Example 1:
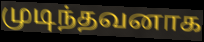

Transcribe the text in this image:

முடிந்தவனாக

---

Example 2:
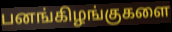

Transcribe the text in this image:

பனங்கிழங்குகளை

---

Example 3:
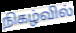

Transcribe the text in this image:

நிகழ்வில்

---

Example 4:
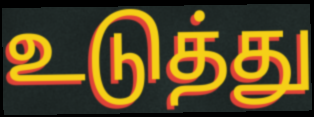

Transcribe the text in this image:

உடுத்து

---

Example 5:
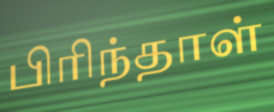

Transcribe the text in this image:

பிரிந்தாள்